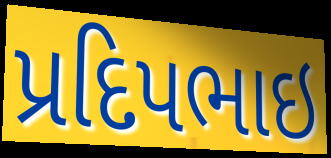
પ્રદિપભાઇ